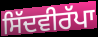
ਸਿੱਦਵੀਰੱਪਾ